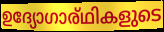
ഉദ്യോഗാര്ഥികളുടെ